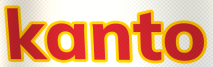
kanto